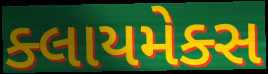
ક્લાયમેક્સ